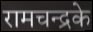
रामचन्द्रके